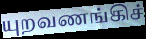
யுறவணங்கிச்